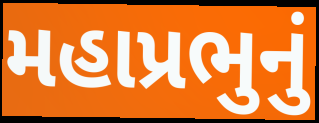
મહાપ્રભુનું